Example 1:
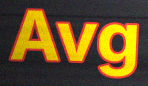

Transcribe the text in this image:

Avg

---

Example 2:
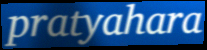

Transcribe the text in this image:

pratyahara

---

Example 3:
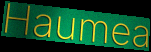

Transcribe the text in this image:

Haumea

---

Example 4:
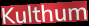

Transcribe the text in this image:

Kulthum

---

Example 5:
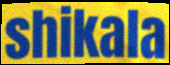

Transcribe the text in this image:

shikala